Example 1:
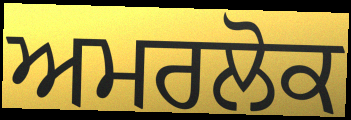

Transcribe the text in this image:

ਅਮਰਲੋਕ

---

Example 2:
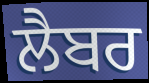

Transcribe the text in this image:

ਲੈਬਰ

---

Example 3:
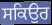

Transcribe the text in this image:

ਸਕਿਉਰ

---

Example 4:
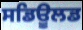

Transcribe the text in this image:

ਸਡਿਊਲਡ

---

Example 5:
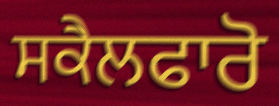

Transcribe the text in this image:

ਸਕੈਲਫਾਰੋ